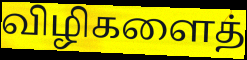
விழிகளைத்